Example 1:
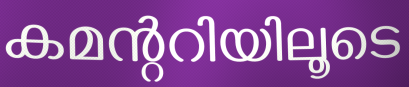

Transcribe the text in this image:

കമന്ററിയിലൂടെ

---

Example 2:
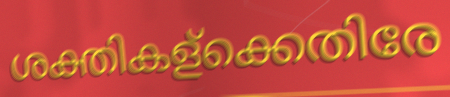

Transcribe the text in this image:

ശക്തികള്ക്കെതിരേ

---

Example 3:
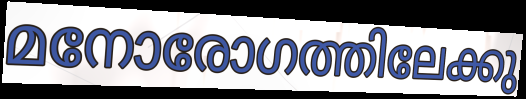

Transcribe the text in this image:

മനോരോഗത്തിലേക്കു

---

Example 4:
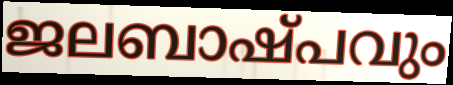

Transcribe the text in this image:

ജലബാഷ്പവും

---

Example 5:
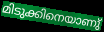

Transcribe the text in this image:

മിടുക്കിനെയാണു്